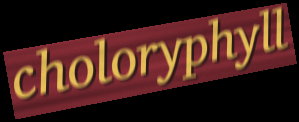
choloryphyll